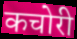
कचोरी